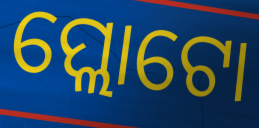
ପ୍ଲୋଟୋ